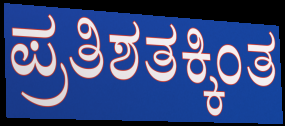
ಪ್ರತಿಶತಕ್ಕಿಂತ